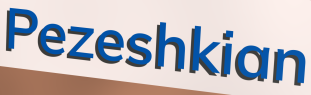
Pezeshkian